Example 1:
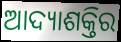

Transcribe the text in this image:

ଆଦ୍ୟାଶକ୍ତିର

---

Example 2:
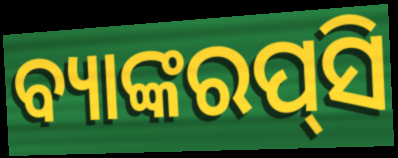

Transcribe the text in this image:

ବ୍ୟାଙ୍କରପ୍‌ସି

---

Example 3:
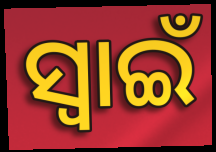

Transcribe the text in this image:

ସ୍ଵାଇଁ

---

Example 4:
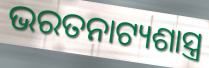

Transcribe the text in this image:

ଭରତନାଟ୍ୟଶାସ୍ତ୍ର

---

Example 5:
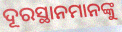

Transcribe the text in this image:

ଦୂରସ୍ଥାନମାନଙ୍କୁ